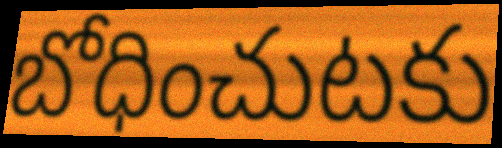
బోధించుటకు